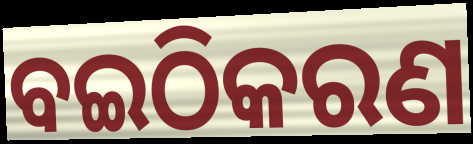
ବଇଠିକରଣ